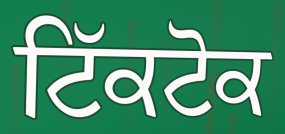
ਟਿੱਕਟੋਕ